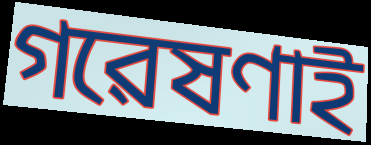
গৱেষণাই